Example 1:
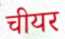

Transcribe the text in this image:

चीयर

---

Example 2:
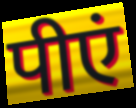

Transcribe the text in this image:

पीएं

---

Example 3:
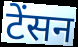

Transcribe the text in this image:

टेंसन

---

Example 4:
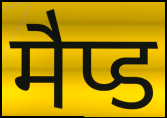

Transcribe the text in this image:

मैप्ड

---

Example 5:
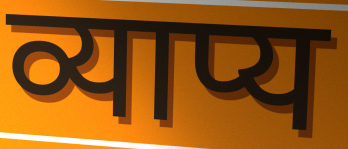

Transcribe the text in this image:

व्याप्य